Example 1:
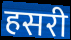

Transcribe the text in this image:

हसरी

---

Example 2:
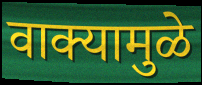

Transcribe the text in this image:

वाक्यामुळे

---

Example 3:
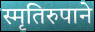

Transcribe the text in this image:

स्मृतिरुपाने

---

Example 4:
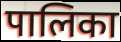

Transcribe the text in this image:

पालिका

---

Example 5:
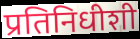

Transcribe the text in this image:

प्रतिनिधीशी